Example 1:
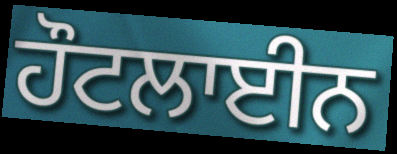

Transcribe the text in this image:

ਹੌਟਲਾਈਨ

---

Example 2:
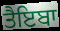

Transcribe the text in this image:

ਤੈਇਬਾ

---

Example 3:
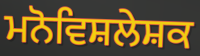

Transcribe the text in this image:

ਮਨੋਵਿਸ਼ਲੇਸ਼ਕ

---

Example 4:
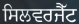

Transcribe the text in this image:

ਸਿਲਵਰਜੈੱਟ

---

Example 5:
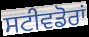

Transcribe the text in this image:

ਸਟੀਵਡੋਰਾਂ